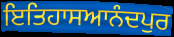
ਇਤਿਹਾਸਆਨੰਦਪੁਰ